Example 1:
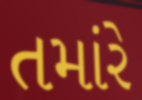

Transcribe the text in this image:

તમાંરે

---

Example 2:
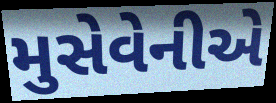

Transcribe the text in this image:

મુસેવેનીએ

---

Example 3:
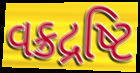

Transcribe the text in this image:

વક્રદ્રષ્ટિ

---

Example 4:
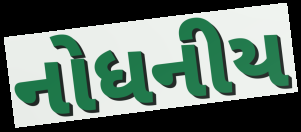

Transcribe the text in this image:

નોધનીય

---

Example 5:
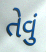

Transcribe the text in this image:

તેવું